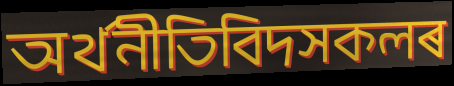
অৰ্থনীতিবিদসকলৰ